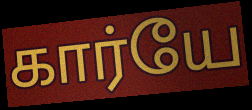
கார்யே